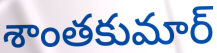
శాంతకుమార్